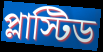
প্লাস্টিড